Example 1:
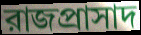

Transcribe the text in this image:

রাজপ্রাসাদ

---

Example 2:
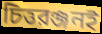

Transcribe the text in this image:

চিত্তরঞ্জনই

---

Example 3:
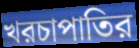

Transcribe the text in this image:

খরচাপাতির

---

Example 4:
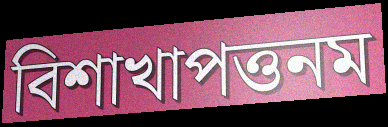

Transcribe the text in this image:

বিশাখাপত্তনম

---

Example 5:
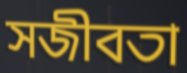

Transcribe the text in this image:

সজীবতা